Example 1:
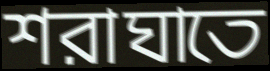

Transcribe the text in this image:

শরাঘাতে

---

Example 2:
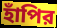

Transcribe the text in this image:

হাঁপির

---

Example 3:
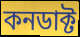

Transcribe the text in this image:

কনডাক্ট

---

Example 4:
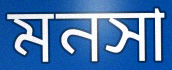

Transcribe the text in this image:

মনসা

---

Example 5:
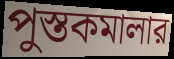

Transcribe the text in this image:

পুস্তকমালার